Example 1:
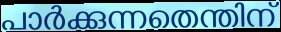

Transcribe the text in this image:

പാർക്കുന്നതെന്തിന്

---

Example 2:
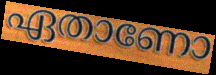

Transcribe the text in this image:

ഏതാണോ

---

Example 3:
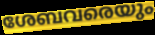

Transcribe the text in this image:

ശേബവരെയും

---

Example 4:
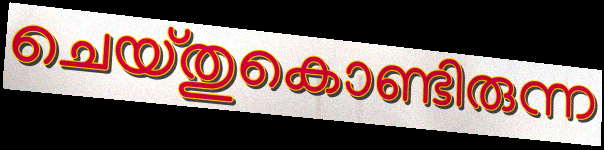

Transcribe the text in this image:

ചെയ്തുകൊണ്ടിരുന്ന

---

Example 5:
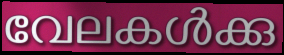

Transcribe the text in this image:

വേലകൾക്കു